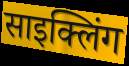
साइक्लिंग